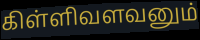
கிள்ளிவளவனும்